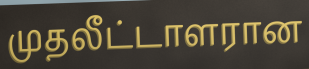
முதலீட்டாளரான